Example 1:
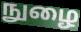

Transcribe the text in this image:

நுழை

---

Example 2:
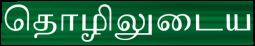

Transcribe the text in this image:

தொழிலுடைய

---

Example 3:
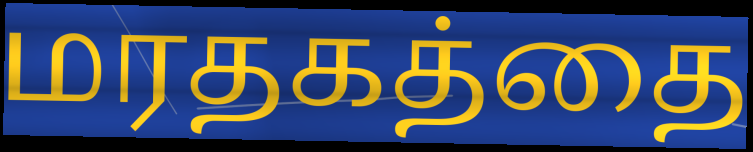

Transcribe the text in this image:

மரதகத்தை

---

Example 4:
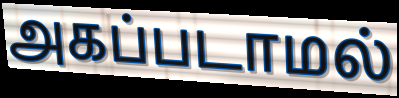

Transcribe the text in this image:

அகப்படாமல்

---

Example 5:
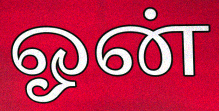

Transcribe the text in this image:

ஓன்